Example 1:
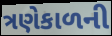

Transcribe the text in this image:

ત્રણેકાળની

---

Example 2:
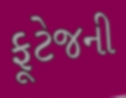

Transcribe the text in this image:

ફૂટેજની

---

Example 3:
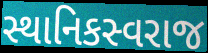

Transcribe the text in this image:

સ્થાનિકસ્વરાજ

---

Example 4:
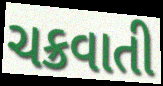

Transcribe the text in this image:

ચક્રવાતી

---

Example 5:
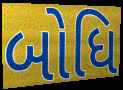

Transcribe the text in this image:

બોધિ